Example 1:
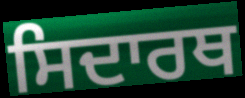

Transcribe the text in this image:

ਸਿਦਾਰਥ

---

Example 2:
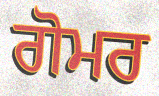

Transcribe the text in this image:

ਗੋਮਰ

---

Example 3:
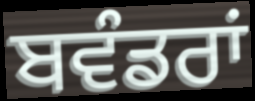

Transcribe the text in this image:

ਬਵੰਡਰਾਂ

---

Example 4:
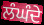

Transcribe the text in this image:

ਲੰਘੰਦੇ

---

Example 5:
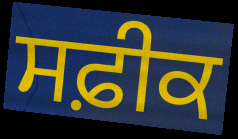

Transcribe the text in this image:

ਸਫ਼ੀਕ